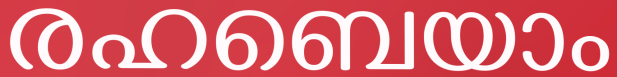
രഹബെയാം